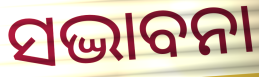
ସଦ୍ଭାବନା